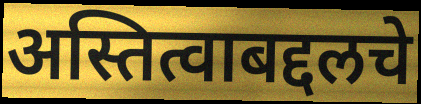
अस्तित्वाबद्दलचे